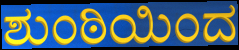
ಶುಂಠಿಯಿಂದ